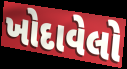
ખોદાવેલો